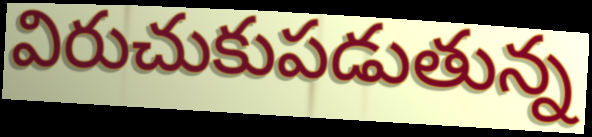
విరుచుకుపడుతున్న